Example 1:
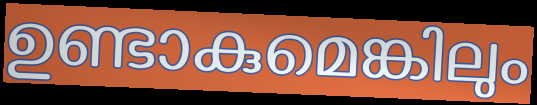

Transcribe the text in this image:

ഉണ്ടാകുമെങ്കിലും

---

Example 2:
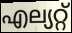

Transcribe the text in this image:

എല്യറ്റ്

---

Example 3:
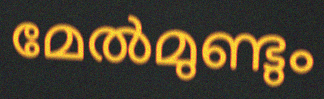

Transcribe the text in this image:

മേൽമുണ്ടും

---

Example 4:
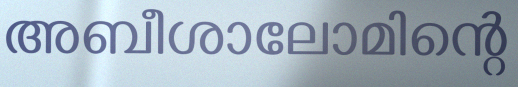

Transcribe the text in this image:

അബീശാലോമിന്റെ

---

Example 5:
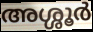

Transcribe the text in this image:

അശ്ശൂർ